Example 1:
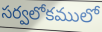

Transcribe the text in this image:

సర్వలోకములో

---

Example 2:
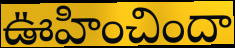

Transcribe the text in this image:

ఊహించిందా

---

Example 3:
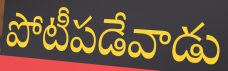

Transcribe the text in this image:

పోటీపడేవాడు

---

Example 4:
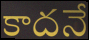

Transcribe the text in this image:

కాదనే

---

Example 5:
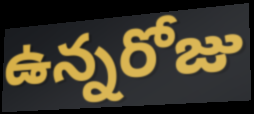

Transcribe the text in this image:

ఉన్నరోజు